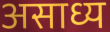
असाध्य